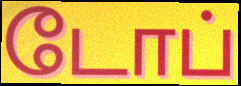
டோப்